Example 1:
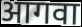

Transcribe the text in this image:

आगवा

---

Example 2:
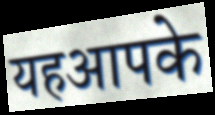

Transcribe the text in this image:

यहआपके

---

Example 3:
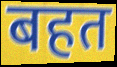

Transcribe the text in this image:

बहत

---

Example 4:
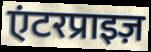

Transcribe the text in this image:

एंटरप्राइज़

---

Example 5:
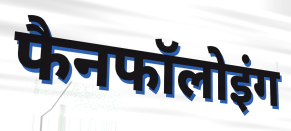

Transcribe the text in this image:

फैनफॉलोइंग